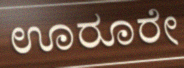
ಊರೂರೇ